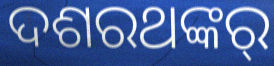
ଦଶରଥଙ୍କର୍